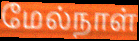
மேல்நாள்